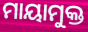
ମାୟାମୁକ୍ତ